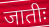
जातीः